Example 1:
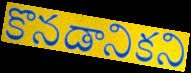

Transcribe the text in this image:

కొనడానికని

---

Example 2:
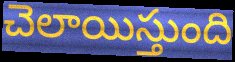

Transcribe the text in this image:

చెలాయిస్తుంది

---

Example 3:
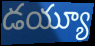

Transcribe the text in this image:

డయ్యూ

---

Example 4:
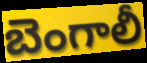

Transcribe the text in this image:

బెంగాలీ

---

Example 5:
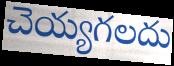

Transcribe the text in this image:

చెయ్యగలదు